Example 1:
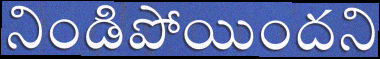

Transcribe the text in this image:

నిండిపోయిందని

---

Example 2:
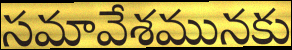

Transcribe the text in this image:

సమావేశమునకు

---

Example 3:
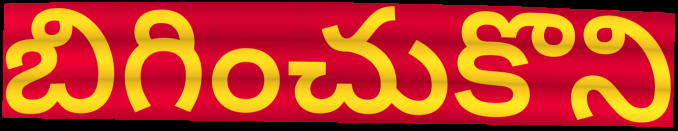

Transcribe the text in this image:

బిగించుకొని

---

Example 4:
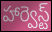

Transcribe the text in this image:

హార్వెస్ట్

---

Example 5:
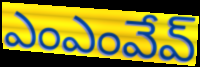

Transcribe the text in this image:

ఎంఎంవేవ్